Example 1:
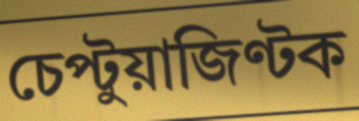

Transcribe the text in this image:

চেপ্টুয়াজিণ্টক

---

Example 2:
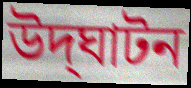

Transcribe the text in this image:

উদ্‌ঘাটন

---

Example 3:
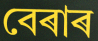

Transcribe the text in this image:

বেৰাৰ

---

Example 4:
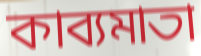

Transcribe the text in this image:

কাব্যমাতা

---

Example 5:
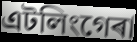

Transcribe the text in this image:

এটলিংগেৰা